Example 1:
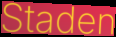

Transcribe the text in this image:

Staden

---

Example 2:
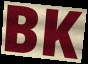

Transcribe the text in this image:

BK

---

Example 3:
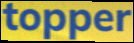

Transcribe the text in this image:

topper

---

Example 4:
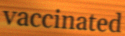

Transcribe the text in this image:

vaccinated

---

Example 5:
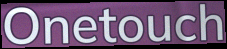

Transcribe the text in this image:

Onetouch